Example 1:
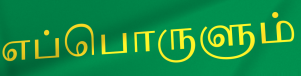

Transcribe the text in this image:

எப்பொருளும்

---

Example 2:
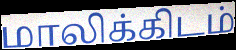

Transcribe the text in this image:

மாலிக்கிடம்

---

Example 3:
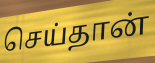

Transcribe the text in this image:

செய்தான்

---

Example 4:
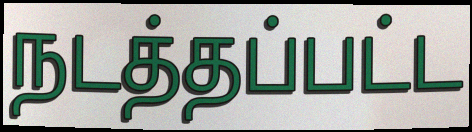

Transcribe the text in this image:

நடத்தப்பட்ட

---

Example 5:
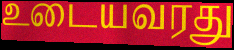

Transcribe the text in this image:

உடையவரது